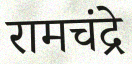
रामचंद्रे